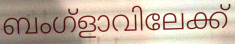
ബംഗ്ളാവിലേക്ക്